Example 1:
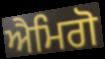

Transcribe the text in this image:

ਐਮਿਗੋ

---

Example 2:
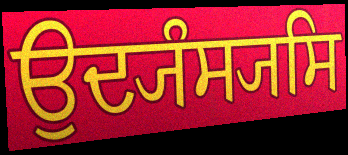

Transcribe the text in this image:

ਉਦ੍ਯੰਸ੍ਯਸਿ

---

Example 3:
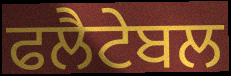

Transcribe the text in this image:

ਫਲੈਟੇਬਲ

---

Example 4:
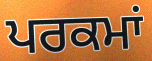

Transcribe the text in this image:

ਪਰਕਮਾਂ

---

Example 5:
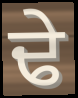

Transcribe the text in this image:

ਢੇ